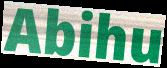
Abihu